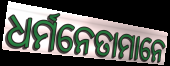
ଧର୍ମନେତାମାନେ